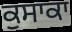
ਕੁਸਾਕਾ